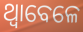
ଥ୍ବାବେଳେ